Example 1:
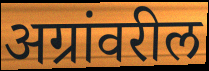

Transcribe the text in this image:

अग्रांवरील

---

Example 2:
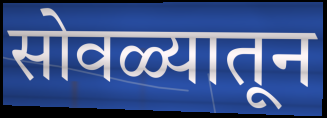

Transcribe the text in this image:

सोवळ्यातून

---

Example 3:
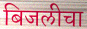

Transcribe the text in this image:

बिजलीचा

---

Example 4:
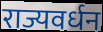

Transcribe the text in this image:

राज्यवर्धन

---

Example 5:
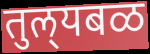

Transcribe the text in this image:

तुल्यबळ